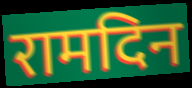
रामदिन